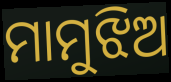
ମାମୁଝିଅ